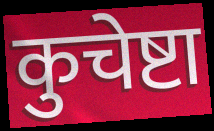
कुचेष्टा